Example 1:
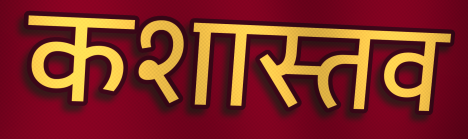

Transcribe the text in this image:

कशास्तव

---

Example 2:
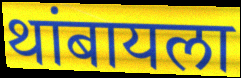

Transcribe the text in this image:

थांबायला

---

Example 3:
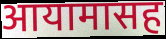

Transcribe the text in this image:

आयामासह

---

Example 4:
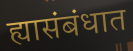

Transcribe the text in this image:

ह्यासंबंधात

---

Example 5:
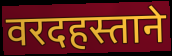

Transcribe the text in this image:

वरदहस्ताने